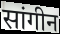
सांगीन